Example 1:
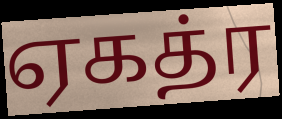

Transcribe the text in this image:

ஏகத்ர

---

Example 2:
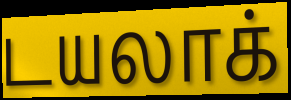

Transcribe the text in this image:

டயலாக்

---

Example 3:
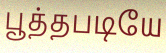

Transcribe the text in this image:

பூத்தபடியே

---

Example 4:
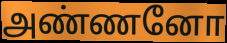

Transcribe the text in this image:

அண்ணனோ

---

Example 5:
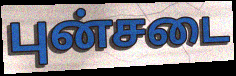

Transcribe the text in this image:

புன்சடை